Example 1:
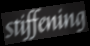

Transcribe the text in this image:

stiffening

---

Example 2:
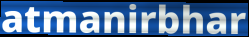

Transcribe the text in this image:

atmanirbhar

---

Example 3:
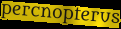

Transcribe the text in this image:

percnopterus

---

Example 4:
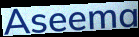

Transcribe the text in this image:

Aseema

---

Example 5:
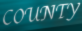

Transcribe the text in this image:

COUNTY